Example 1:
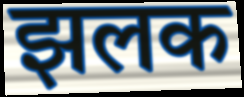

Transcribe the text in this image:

झलक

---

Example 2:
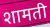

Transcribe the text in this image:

शामती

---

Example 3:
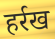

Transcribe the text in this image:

हर्रख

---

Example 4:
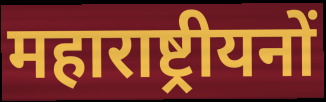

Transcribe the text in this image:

महाराष्ट्रीयनों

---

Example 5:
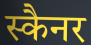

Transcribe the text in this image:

स्कैनर